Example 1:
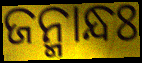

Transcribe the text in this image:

ଜନ୍ମାନ୍ଧଃ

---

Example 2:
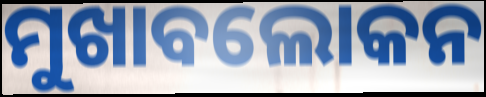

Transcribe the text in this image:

ମୁଖାବଲୋକନ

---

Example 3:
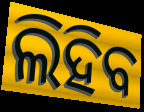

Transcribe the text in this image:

ଲିହିବ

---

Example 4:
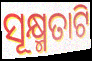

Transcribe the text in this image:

ସୂକ୍ଷ୍ମତାଟି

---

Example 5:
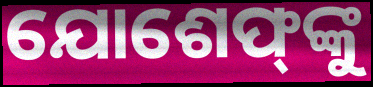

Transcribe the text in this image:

ଯୋଶେଫ୍‌ଙ୍କୁ